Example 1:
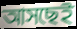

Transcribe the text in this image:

আসছেই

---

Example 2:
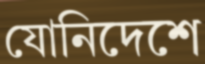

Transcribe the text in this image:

যোনিদেশে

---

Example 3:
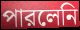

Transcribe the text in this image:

পারলেনি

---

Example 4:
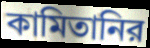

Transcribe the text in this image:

কামিতানির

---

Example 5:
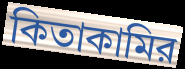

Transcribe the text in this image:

কিতাকামির